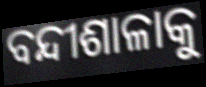
ବନ୍ଦୀଶାଳାକୁ